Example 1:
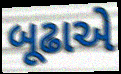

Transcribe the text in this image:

બૂઢાએ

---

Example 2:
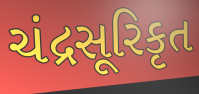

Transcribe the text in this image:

ચંદ્રસૂરિકૃત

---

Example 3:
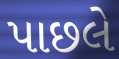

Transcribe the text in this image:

પાછલે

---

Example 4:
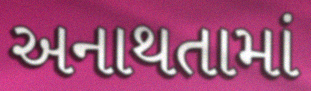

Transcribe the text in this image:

અનાથતામાં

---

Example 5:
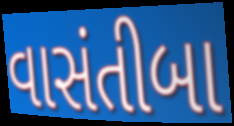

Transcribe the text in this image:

વાસંતીબા